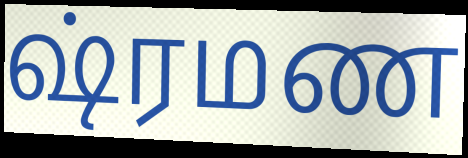
ஷ்ரமண